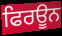
ਫਿਰਊਨ